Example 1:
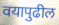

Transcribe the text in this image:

वयापुढील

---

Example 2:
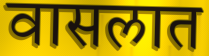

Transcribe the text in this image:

वासलात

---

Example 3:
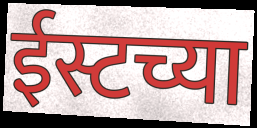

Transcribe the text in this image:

ईस्टच्या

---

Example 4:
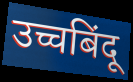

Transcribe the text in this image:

उच्चबिंदू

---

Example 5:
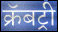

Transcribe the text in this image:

क्रॅबट्री